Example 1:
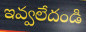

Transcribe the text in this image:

ఇవ్వలేదండి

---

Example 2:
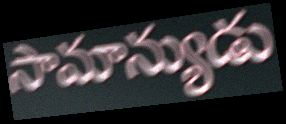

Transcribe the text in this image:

సామాన్యుడు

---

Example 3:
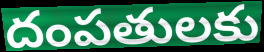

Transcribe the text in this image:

దంపతులకు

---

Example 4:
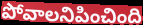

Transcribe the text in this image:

పోవాలనిపించింది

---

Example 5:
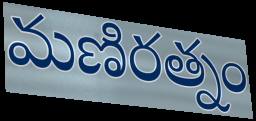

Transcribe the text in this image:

మణిరత్నం